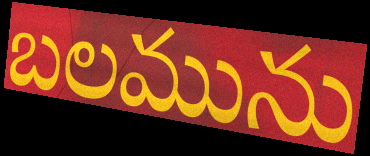
బలమును